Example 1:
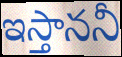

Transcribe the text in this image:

ఇస్తాననీ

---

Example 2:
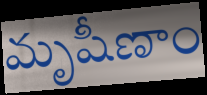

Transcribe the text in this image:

మృషీణాం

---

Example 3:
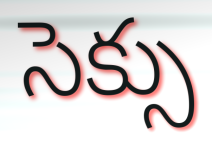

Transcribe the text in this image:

సెక్సు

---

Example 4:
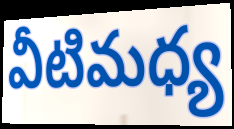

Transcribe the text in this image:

వీటిమధ్య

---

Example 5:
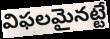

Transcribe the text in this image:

విఫలమైనట్టే